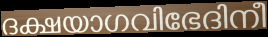
ദക്ഷയാഗവിഭേദിനീ